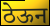
ठेऊन